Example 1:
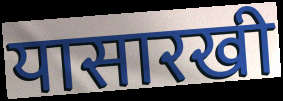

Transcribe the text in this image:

यासारखी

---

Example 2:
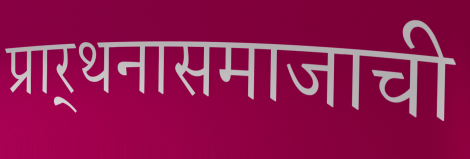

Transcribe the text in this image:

प्रार्थनासमाजाची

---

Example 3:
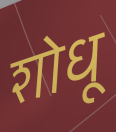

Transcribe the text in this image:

शोधू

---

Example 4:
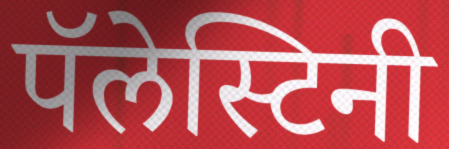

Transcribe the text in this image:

पॅलेस्टिनी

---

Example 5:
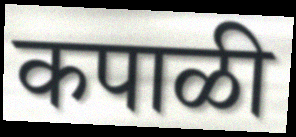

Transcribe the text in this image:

कपाळी